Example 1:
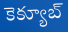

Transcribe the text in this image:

కెక్యూబ్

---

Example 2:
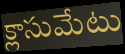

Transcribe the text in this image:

క్లాసుమేటు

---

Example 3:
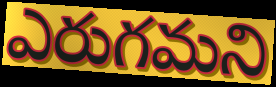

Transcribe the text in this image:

ఎరుగమని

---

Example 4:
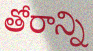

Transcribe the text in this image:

తోరాన్ని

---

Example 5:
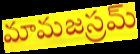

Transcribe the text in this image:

మామజస్రమ్